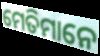
ମେତିମାନେ